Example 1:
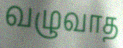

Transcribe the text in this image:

வழுவாத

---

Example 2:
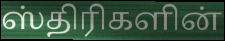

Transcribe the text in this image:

ஸ்திரிகளின்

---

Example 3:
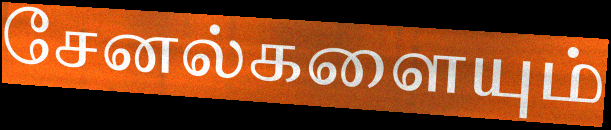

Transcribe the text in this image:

சேனல்களையும்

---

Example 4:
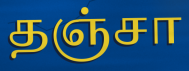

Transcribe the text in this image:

தஞ்சா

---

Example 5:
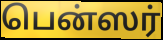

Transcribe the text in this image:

பென்ஸர்